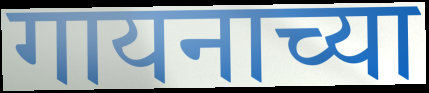
गायनाच्या